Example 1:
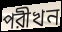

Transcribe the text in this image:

পরীখন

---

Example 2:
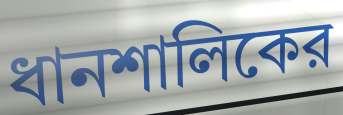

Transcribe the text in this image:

ধানশালিকের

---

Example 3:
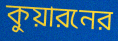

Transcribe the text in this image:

কুয়ারনের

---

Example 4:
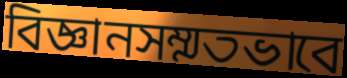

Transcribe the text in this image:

বিজ্ঞানসম্মতভাবে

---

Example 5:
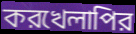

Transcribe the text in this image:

করখেলাপির